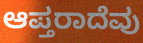
ಆಪ್ತರಾದೆವು